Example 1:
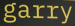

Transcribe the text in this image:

garry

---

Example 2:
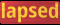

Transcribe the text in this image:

lapsed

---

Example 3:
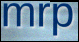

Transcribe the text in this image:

mrp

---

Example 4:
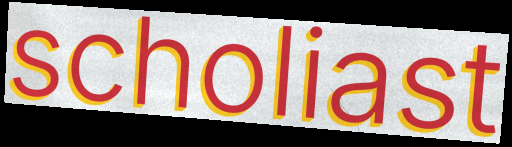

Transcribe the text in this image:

scholiast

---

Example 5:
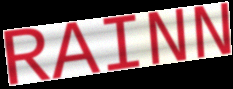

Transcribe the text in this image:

RAINN